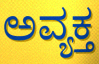
ಅವ್ಯಕ್ತ